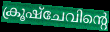
ക്രൂഷ്ചേവിന്റെ